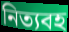
নিত্যবহ